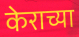
केराच्या